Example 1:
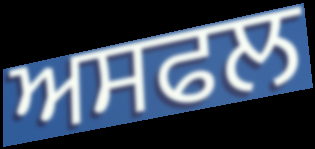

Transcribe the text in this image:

ਅਸਫਲ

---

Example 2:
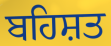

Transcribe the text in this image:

ਬਹਿਸ਼ਤ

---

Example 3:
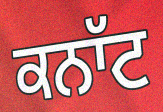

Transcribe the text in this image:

ਕਨਾੱਟ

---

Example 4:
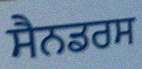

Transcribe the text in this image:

ਸੈਨਡਰਸ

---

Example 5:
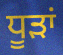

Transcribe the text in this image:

ਧੂਡ਼ਾਂ